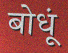
बोधूं